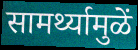
सामर्थ्यामुळें